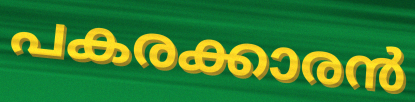
പകരക്കാരൻ